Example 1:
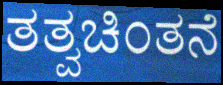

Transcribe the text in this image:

ತತ್ವಚಿಂತನೆ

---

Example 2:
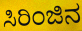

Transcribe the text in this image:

ಸಿರಿಂಜಿನ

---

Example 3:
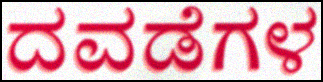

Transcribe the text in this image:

ದವಡೆಗಳ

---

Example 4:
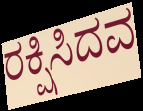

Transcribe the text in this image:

ರಕ್ಷಿಸಿದವ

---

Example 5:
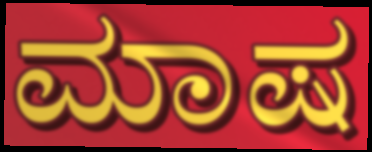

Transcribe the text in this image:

ಮಾಷ